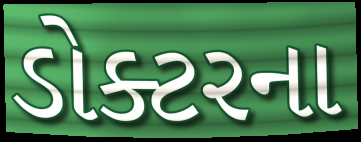
ડોક્ટરના